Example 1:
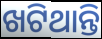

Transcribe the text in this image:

ଖଟିଥାନ୍ତି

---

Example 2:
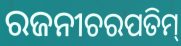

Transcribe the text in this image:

ରଜନୀଚରପତିମ୍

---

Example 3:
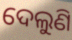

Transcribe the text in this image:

ଦେଲୁଣି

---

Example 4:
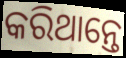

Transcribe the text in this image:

କରିଥାନ୍ତେ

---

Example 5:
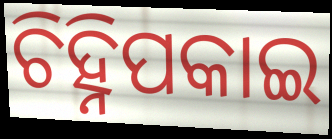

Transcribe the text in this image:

ଚିହ୍ନିପକାଇ